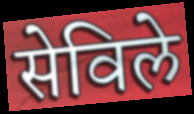
सेविले